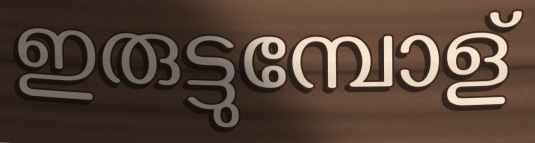
ഇരുട്ടുമ്പോള്